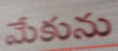
మేకును